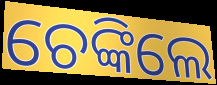
ଚେଙ୍କିଲେ